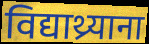
विद्याथ्र्याना